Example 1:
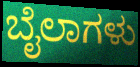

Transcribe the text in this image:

ಬೈಲಾಗಳು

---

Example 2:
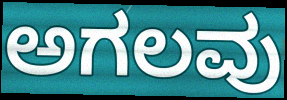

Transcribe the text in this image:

ಅಗಲವು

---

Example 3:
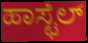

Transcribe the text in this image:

ಹಾಸ್ಟೆಲ್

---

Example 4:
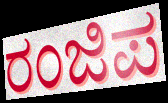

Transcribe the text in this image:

ರಂಜಿಪ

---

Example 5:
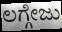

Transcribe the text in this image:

ಲಗ್ಗೇಜು